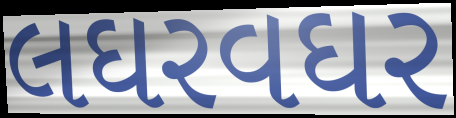
લઘરવઘર